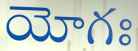
యోగః